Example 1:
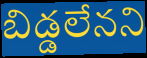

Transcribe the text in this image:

బిడ్డలేనని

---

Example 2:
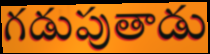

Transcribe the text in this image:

గడుపుతాడు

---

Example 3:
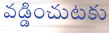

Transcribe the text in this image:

వడ్డించుటకు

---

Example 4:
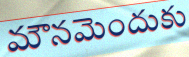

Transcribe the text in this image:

మౌనమెందుకు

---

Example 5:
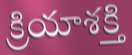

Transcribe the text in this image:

క్రియాశక్తి